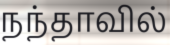
நந்தாவில்